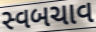
સ્વબચાવ